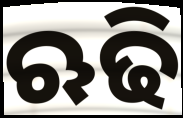
ଋଢି